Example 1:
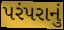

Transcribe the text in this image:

પરંપરાનું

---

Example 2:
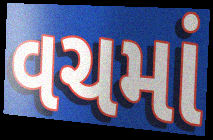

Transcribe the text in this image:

વચમાં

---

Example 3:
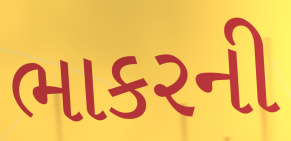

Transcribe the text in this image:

ભાકરની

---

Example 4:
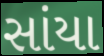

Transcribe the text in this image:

સાંયા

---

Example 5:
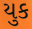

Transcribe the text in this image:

યુક